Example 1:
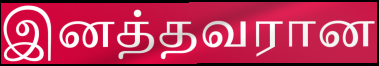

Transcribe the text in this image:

இனத்தவரான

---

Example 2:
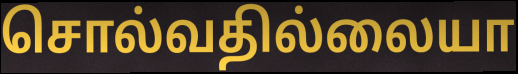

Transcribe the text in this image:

சொல்வதில்லையா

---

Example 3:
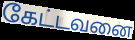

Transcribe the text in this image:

கேட்டவனை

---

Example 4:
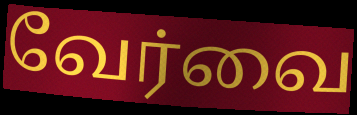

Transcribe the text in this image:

வேர்வை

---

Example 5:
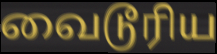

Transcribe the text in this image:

வைடூரிய